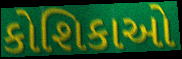
કોશિકાઓ